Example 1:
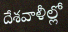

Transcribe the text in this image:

దేశవాళీల్లో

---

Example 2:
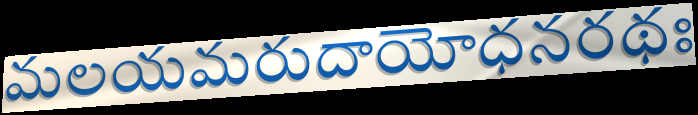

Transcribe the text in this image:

మలయమరుదాయోధనరథః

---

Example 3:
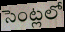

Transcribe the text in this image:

సెంట్లలో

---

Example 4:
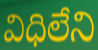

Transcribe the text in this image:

విధిలేని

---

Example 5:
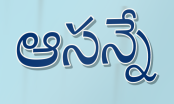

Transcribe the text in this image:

ఆసన్నే